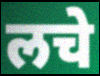
लचे